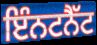
ਇੰਨਟਨੈੱਟ